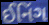
ઈનિંગ